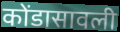
कोंडासावली